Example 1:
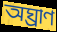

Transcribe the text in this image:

অঘ্রাণ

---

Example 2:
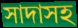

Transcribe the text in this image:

সাদাসহ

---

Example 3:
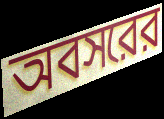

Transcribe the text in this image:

অবসরের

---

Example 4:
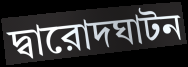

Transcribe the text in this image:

দ্বারোদঘাটন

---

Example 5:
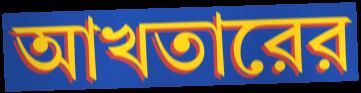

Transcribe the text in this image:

আখতারের